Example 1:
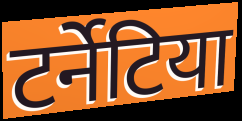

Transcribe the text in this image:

टर्नेटिया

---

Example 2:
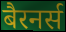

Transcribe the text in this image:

बैरनर्स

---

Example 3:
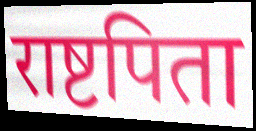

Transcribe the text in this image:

राष्टपिता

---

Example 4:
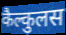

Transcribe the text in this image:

कैल्कुलस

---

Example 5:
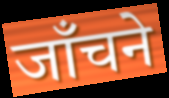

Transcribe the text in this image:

जाँचने